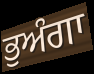
ਭੁਅੰਗਾ